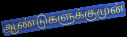
ஆண்டுகளுக்குமுன்